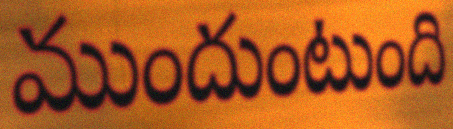
ముందుంటుంది